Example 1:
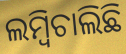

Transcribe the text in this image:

ଲମ୍ବିଚାଲିଛି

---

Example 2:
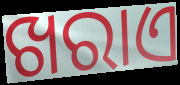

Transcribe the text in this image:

ଖରାଏ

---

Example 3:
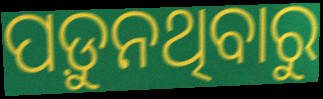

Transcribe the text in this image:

ପଡ଼ୁନଥିବାରୁ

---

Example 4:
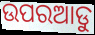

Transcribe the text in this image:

ଉପରଆଡୁ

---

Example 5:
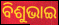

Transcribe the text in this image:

ବିଶୁଭାଇ